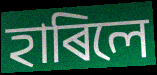
হাৰিলে